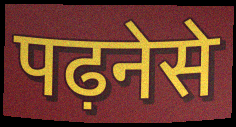
पढ़नेसे